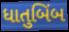
ધાતુબિંબ